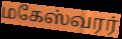
மகேஸ்வரர்